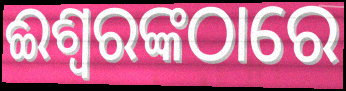
ଈଶ୍ୱରଙ୍କଠାରେ